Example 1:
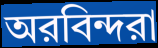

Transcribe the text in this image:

অরবিন্দরা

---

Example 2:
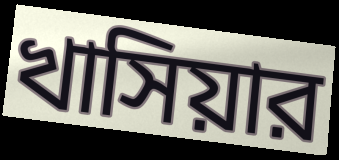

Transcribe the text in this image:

খাসিয়ার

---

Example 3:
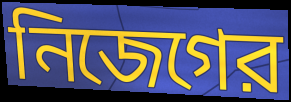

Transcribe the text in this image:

নিজেগের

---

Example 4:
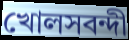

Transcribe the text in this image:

খোলসবন্দী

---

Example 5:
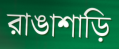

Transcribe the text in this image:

রাঙাশাড়ি